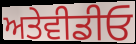
ਅਤੇਵੀਡੀਓ